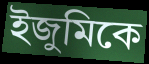
ইজুমিকে